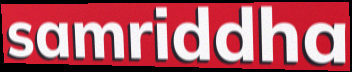
samriddha